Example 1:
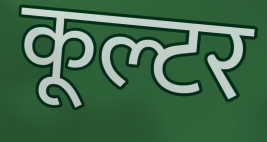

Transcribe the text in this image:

कूल्‍टर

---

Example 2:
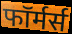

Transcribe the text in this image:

फॉर्मर्स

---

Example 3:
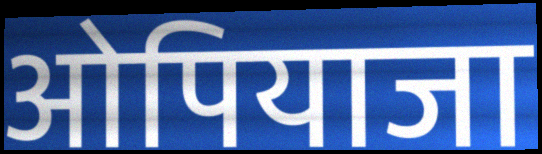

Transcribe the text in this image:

ओपियाजा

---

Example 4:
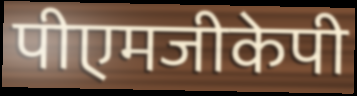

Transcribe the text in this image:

पीएमजीकेपी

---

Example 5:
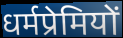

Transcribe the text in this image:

धर्मप्रेमियों